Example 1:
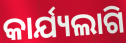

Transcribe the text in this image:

କାର୍ଯ୍ୟଲାଗି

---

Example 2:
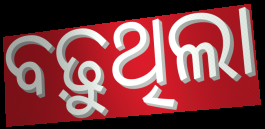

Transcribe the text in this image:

ବଢ଼ୁଥିଲା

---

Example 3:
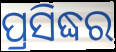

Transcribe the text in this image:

ପ୍ରସିଦ୍ଧର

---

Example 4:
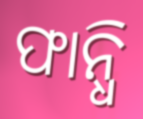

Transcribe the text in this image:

ଫାନ୍ଧି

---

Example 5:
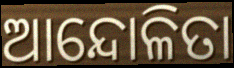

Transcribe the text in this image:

ଆନ୍ଦୋଳିତା